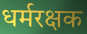
धर्मरक्षक